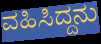
ವಹಿಸಿದ್ದನು